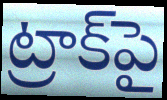
ట్రాక్‌పై